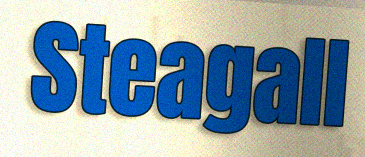
Steagall